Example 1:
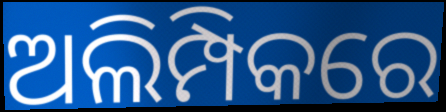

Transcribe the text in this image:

ଅଲିମ୍ପିକରେ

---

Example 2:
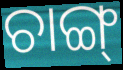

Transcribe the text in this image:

ଚାଙ୍ଗ୍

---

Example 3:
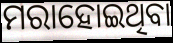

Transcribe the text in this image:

ମରାହୋଇଥିବା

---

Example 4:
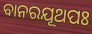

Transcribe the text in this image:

ବାନରଯୂଥପଃ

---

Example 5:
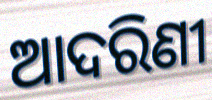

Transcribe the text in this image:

ଆଦରିଣୀ